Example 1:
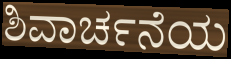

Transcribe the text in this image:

ಶಿವಾರ್ಚನೆಯ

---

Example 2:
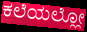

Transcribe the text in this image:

ಕಲೆಯಲ್ಲೋ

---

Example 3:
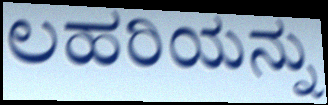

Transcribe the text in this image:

ಲಹರಿಯನ್ನು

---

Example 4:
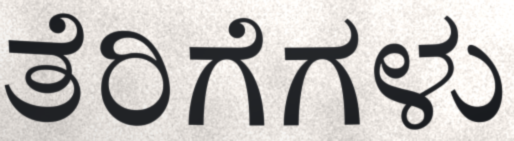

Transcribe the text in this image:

ತೆರಿಗೆಗಳು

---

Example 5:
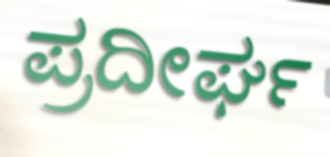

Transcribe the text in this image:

ಪ್ರದೀರ್ಘ